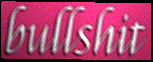
bullshit